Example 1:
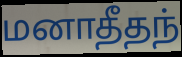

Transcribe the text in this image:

மனாதீதந்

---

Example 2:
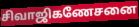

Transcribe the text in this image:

சிவாஜிகணேசனை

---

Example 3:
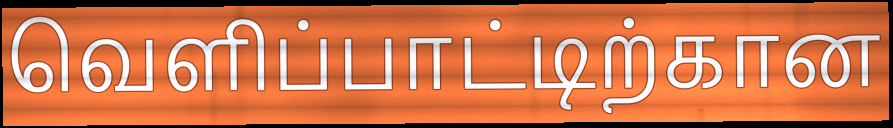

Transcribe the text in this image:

வெளிப்பாட்டிற்கான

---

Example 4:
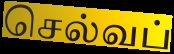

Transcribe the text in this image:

செல்வப்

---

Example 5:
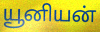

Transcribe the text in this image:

யூனியன்